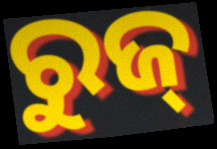
ରୁଜ୍